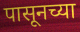
पासूनच्या